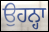
ਉਹਨ੍ਹਾ